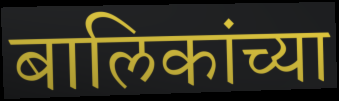
बालिकांच्या